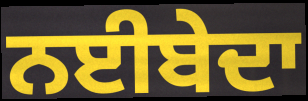
ਨਈਬੇਦਾ